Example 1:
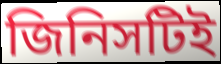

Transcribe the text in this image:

জিনিসটিই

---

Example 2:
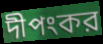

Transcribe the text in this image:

দীপংকর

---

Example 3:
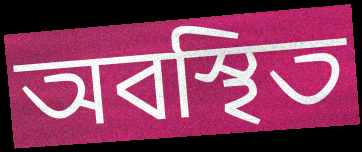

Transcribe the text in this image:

অবস্থিত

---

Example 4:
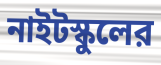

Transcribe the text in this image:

নাইটস্কুলের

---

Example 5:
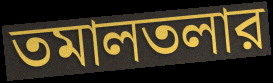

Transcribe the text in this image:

তমালতলার